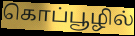
கொப்பூழில்